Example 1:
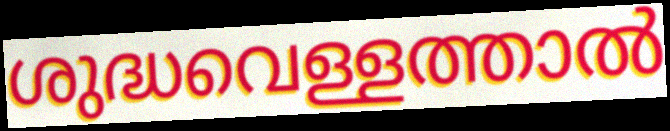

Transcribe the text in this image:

ശുദ്ധവെള്ളത്താൽ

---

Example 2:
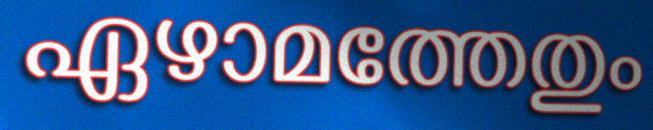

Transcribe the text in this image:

ഏഴാമത്തേതും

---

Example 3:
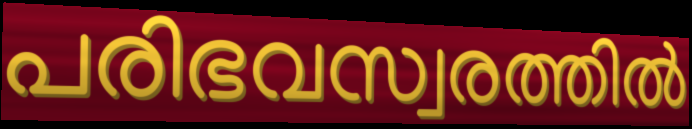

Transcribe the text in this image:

പരിഭവസ്വരത്തിൽ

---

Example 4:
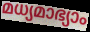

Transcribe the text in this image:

മധ്യമാഭ്യാം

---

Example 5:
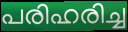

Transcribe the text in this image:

പരിഹരിച്ച